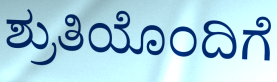
ಶ್ರುತಿಯೊಂದಿಗೆ